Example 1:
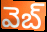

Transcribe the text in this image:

వెబ్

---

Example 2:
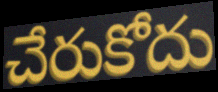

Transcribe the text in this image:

చేరుకోదు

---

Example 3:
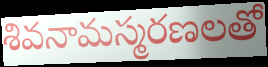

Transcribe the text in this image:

శివనామస్మరణలతో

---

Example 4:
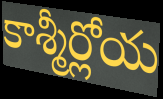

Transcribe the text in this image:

కాశ్మీర్లోయ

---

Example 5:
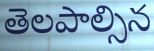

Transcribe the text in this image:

తెలపాల్సిన